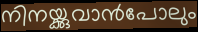
നിനയ്ക്കുവാൻപോലും